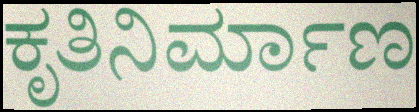
ಕೃತಿನಿರ್ಮಾಣ